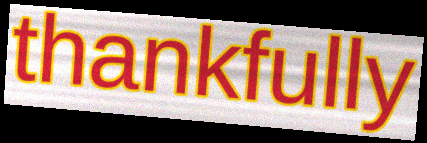
thankfully